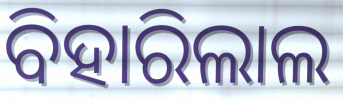
ବିହାରିଲାଲ